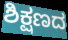
ಶಿಕ್ಷಣದ